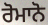
ਰੋਮਾਨੋ